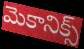
మెకానిక్స్